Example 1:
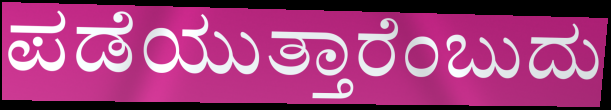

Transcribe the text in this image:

ಪಡೆಯುತ್ತಾರೆಂಬುದು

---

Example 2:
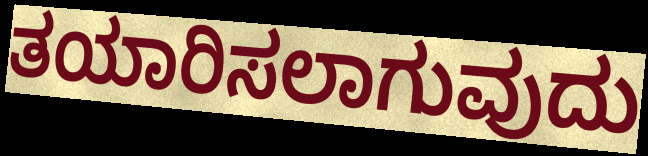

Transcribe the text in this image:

ತಯಾರಿಸಲಾಗುವುದು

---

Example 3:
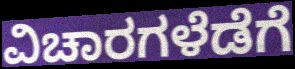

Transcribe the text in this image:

ವಿಚಾರಗಳೆಡೆಗೆ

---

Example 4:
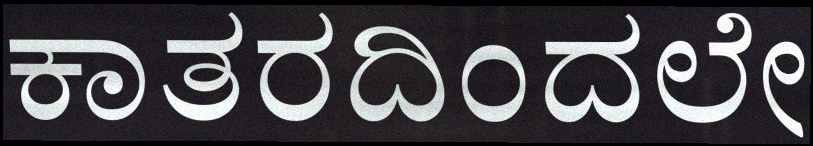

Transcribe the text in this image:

ಕಾತರದಿಂದಲೇ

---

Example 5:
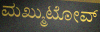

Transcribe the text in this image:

ಮಖ್ಮುಟೋವ್